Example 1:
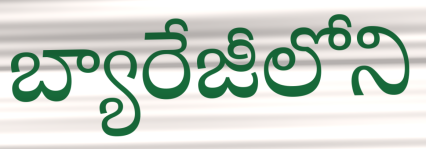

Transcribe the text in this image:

బ్యారేజీలోని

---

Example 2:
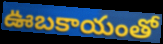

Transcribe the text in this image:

ఊబకాయంతో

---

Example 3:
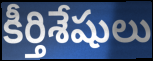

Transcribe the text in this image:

కీర్తిశేషులు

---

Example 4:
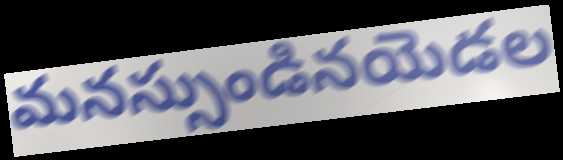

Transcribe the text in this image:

మనస్సుండినయెడల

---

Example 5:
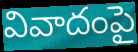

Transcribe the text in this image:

వివాదంపై